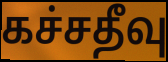
கச்சதீவு